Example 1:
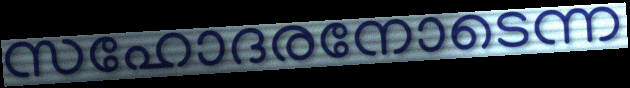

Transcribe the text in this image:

സഹോദരനോടെന്ന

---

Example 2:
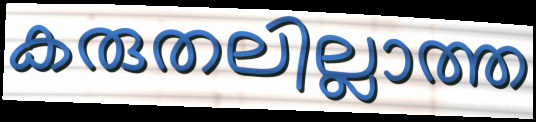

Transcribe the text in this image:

കരുതലില്ലാത്ത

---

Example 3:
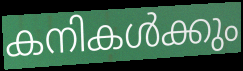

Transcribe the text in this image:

കനികൾക്കും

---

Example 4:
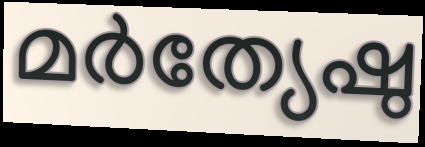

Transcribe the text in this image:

മർത്യേഷു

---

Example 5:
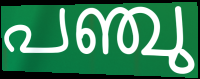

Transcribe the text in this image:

പഞ്ചു